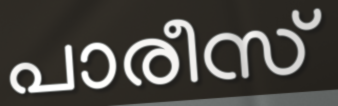
പാരീസ്